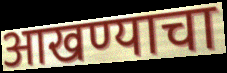
आखण्याचा